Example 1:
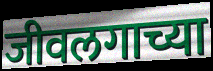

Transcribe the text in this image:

जीवलगाच्या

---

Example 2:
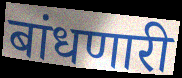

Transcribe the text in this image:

बांधणारी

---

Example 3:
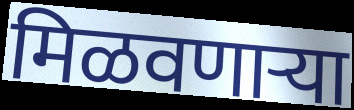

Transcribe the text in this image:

मिळवणाऱ्या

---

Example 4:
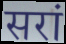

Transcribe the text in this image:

सरां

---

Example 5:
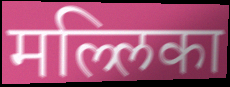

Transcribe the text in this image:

मल्लिका